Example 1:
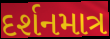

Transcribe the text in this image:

દર્શનમાત્ર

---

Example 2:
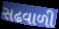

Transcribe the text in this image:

સઢવાળી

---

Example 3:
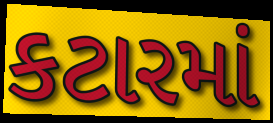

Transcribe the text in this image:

કટારમાં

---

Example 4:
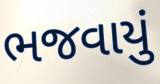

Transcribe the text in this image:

ભજવાયું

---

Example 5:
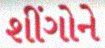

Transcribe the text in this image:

શીંગોને